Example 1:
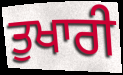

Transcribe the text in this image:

ਤੁਖਾਰੀ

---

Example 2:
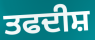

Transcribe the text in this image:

ਤਫਦੀਸ਼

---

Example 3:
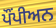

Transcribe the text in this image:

ਪੌਂਪੀਅਨ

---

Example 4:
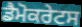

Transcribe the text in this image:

ਡੈਮੋਕਰੇਟਸ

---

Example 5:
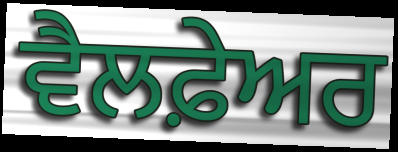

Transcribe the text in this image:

ਵੈਲਫ਼ੇਅਰ